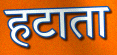
हटाता